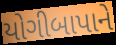
યોગીબાપાને